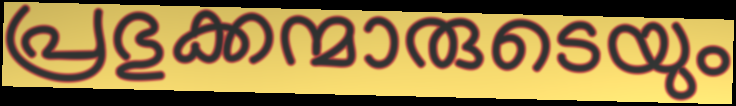
പ്രഭുക്കന്മാരുടെയും